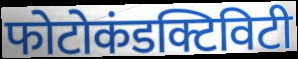
फोटोकंडक्टिविटी